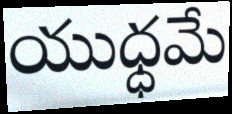
యుధ్ధమే